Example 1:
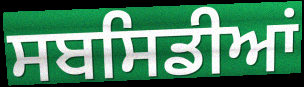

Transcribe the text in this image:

ਸਬਸਿਡੀਆਂ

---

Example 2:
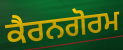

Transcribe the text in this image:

ਕੈਰਨਗੋਰਮ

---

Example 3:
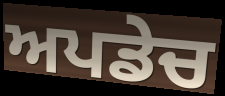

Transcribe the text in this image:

ਅਪਡੇਚ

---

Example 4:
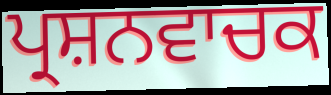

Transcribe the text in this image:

ਪ੍ਰਸ਼ਨਵਾਚਕ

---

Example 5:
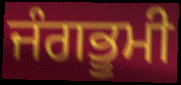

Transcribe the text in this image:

ਜੰਗਭੂਮੀ